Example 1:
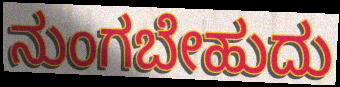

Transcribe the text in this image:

ನುಂಗಬೇಹುದು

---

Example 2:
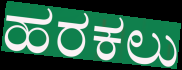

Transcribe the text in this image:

ಹರಕಲು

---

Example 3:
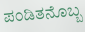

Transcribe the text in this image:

ಪಂಡಿತನೊಬ್ಬ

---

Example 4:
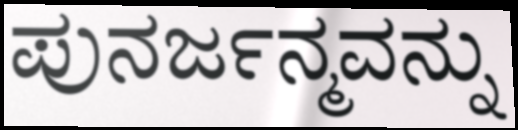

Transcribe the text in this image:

ಪುನರ್ಜನ್ಮವನ್ನು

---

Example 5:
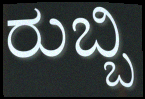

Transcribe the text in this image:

ರುಬ್ಬಿ